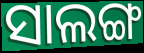
ସାଲଙ୍ଗ